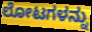
ಲೋಟಗಳನ್ನು